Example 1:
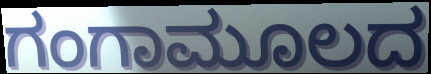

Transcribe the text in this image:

ಗಂಗಾಮೂಲದ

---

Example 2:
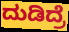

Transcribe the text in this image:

ದುಡಿದ್ರೆ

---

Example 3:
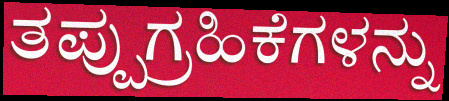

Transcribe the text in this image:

ತಪ್ಪುಗ್ರಹಿಕೆಗಳನ್ನು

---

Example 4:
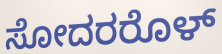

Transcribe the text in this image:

ಸೋದರರೊಳ್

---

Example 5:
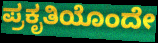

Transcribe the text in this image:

ಪ್ರಕೃತಿಯೊಂದೇ